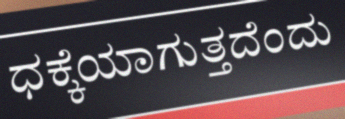
ಧಕ್ಕೆಯಾಗುತ್ತದೆಂದು